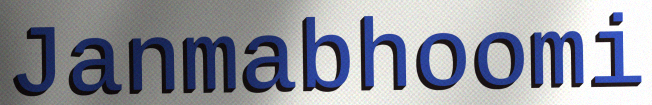
Janmabhoomi